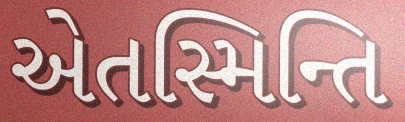
એતસ્મિન્તિ